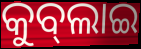
କୁବ୍‌ଲାଇ